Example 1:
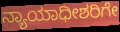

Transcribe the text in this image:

ನ್ಯಾಯಾಧೀಶರಿಗೇ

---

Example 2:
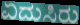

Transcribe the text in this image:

ಏದುಸಿರು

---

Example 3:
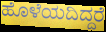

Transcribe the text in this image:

ಹೊಳೆಯದಿದ್ದರೆ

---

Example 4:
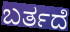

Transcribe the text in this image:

ಬರ್ತದೆ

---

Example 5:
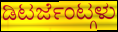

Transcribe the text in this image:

ಡಿಟರ್ಜೆಂಟ್ಗಳು